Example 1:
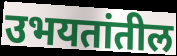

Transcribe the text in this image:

उभयतांतील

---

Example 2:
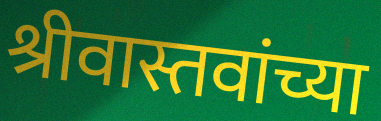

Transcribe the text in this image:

श्रीवास्तवांच्या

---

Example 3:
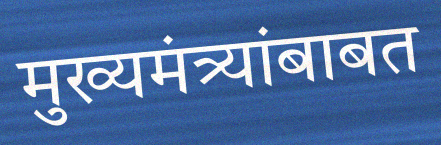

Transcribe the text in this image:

मुख्यमंत्र्यांबाबत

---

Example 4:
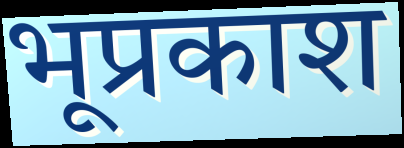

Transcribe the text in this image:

भूप्रकाश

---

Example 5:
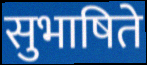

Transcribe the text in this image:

सुभाषिते